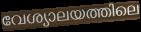
വേശ്യാലയത്തിലെ